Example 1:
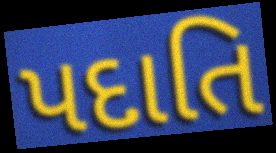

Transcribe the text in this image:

પદાતિ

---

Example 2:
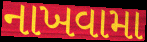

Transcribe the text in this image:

નાખવામા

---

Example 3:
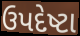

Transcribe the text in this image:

ઉપદેષ્ટા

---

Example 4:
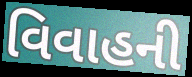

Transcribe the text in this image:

વિવાહની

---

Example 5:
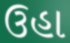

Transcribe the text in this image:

ઉહા